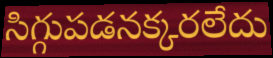
సిగ్గుపడనక్కరలేదు